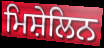
ਮਿਸ਼ੇਲਿਨ